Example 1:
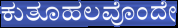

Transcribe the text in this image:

ಕುತೂಹಲವೊಂದೇ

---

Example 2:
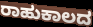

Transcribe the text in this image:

ರಾಹುಕಾಲದ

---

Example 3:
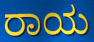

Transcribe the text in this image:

ರಾಯ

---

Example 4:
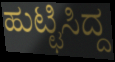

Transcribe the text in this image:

ಹುಟ್ಟಿಸಿದ್ದ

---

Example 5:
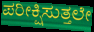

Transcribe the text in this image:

ಪರೀಕ್ಷಿಸುತ್ತಲೇ